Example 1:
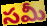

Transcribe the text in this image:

సమీ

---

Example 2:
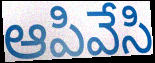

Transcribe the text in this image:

ఆపివేసి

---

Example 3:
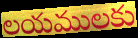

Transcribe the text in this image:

లయములకు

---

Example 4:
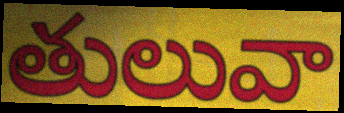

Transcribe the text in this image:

తులువా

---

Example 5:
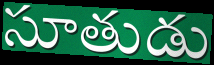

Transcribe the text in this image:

సూతుడు